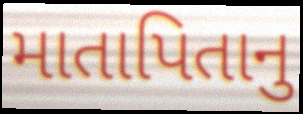
માતાપિતાનુ